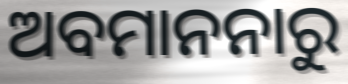
ଅବମାନନାରୁ